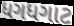
ધગધગાટ